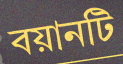
বয়ানটি